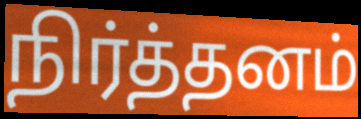
நிர்த்தனம்